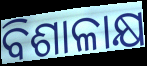
ବିଶାଳାକ୍ଷ